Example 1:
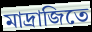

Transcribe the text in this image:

মাদ্রাজিতে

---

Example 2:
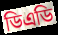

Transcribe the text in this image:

ডিএডি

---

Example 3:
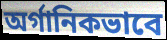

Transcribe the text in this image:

অর্গানিকভাবে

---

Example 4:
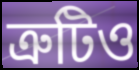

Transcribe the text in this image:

ত্রুটিও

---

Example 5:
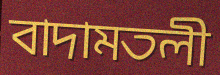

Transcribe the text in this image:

বাদামতলী